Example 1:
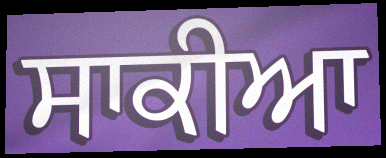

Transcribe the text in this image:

ਸਾਕੀਆ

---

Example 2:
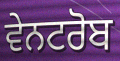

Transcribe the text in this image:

ਵੇਨਟਰੋਬ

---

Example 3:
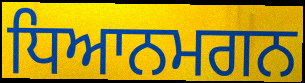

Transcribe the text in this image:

ਧਿਆਨਮਗਨ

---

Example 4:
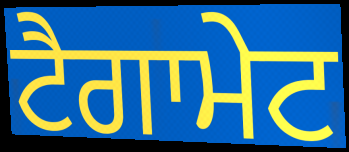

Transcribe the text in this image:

ਟੈਗਾਮੇਟ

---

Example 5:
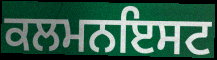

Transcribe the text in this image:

ਕਲਮਨਇਸਟ